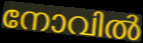
നോവിൽ